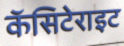
कॅसिटेराइट